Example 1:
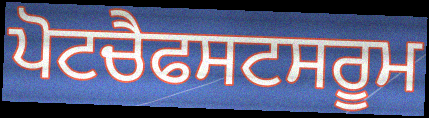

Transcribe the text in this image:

ਪੋਟਚੈਫਸਟਸਰੂਮ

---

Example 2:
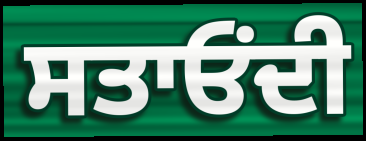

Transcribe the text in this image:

ਸਤਾਓਂਦੀ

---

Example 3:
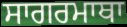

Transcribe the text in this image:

ਸਾਗਰਮਾਥਾ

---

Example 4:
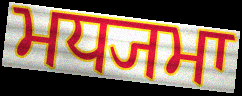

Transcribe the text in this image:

ਮਧ੍ਯਮਾ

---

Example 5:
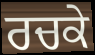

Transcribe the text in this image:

ਰਚਕੇ